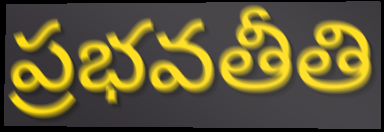
ప్రభవతీతి